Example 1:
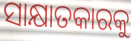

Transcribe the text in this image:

ସାକ୍ଷାତକାରକୁ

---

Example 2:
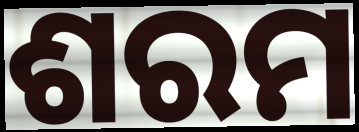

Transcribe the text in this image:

ଶରମ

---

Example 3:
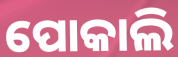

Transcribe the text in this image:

ପୋକାଲି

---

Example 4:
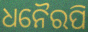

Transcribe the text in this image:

ଧନୈରପି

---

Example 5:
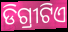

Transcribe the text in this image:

ଡିଗ୍ରୀଟିଏ